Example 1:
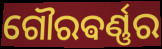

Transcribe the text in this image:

ଗୌରଵର୍ଣ୍ଣର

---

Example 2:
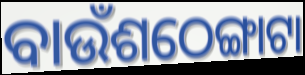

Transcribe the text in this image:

ବାଉଁଶଠେଙ୍ଗାଟା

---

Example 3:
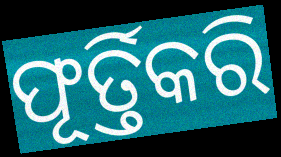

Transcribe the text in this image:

ଫୂର୍ତ୍ତିକରି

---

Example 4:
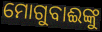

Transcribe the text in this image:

ମୋଗୁବାଈଙ୍କୁ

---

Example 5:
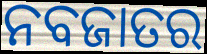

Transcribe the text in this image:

ନବଜାତର